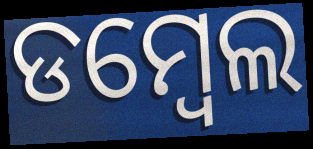
ଡମ୍ୱେଲ